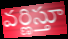
వర్ణిస్తూ